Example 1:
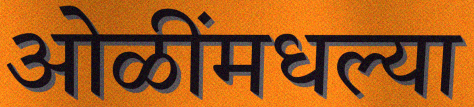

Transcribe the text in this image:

ओळींमधल्या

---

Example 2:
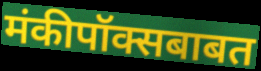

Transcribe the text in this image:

मंकीपॉक्सबाबत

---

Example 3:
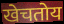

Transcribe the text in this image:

खेचतोय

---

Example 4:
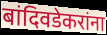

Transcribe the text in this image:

बांदिवडेकरांना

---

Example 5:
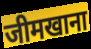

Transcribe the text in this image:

जीमखाना